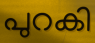
പുറകി